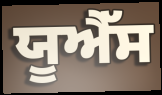
ਯੂਐੱਸ